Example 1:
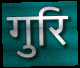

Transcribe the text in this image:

गुरि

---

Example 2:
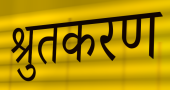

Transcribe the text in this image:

श्रुतकरण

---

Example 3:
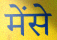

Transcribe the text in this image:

मेंसे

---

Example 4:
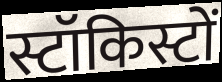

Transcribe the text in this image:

स्टॉकिस्टों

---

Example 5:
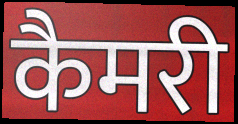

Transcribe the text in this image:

कैमरी